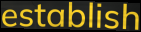
establish